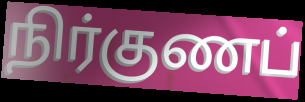
நிர்குணப்